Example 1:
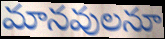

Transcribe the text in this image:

మానవులనూ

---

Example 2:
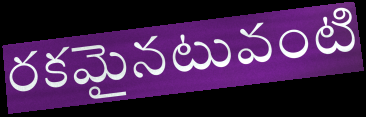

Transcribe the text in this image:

రకమైనటువంటి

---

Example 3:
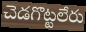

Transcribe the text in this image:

చెడగొట్టలేరు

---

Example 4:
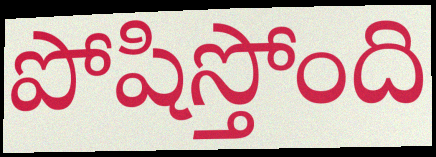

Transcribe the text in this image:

పోషిస్తోంది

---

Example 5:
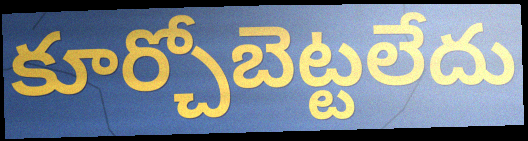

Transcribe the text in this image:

కూర్చోబెట్టలేదు